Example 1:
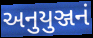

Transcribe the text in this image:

અનુયુઞ્જનં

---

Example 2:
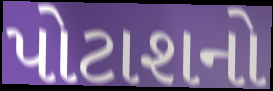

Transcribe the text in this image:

પોટાશનો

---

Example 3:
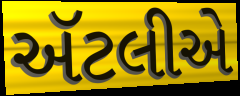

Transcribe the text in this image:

ઍટલીએ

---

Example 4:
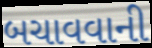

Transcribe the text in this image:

બચાવવાની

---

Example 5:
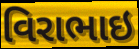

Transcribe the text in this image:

વિરાભાઇ